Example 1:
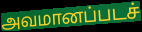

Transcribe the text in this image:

அவமானப்படச்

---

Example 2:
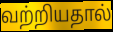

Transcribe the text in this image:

வற்றியதால்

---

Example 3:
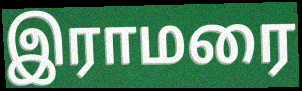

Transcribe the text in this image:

இராமரை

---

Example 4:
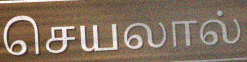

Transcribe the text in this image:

செயலால்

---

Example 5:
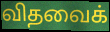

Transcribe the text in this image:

விதவைக்